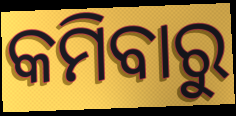
କମିବାରୁ